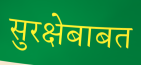
सुरक्षेबाबत